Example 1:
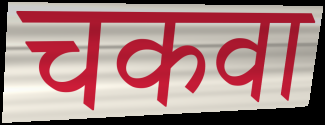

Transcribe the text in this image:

चकवा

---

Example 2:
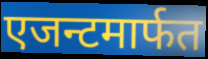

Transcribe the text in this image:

एजन्टमार्फत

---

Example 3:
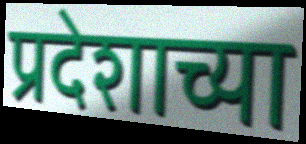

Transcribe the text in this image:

प्रदेशाच्या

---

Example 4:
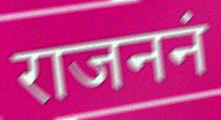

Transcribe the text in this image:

राजननं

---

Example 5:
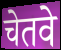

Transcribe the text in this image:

चेतवे